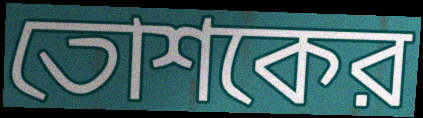
তোশকের